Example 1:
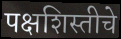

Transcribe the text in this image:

पक्षशिस्तीचे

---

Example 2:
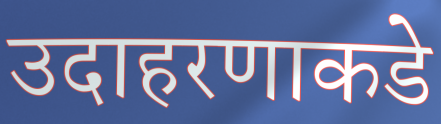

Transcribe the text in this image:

उदाहरणाकडे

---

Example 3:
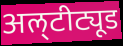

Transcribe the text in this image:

अल्टीट्यूड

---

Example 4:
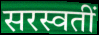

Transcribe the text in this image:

सरस्वतीं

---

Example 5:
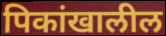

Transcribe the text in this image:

पिकांखालील